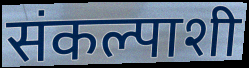
संकल्पाशी